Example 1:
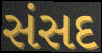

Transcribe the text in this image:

સંસદ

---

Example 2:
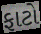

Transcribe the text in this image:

ફાટો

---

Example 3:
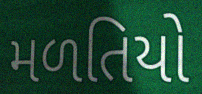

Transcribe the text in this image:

મળતિયો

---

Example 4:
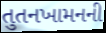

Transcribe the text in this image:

તુતનખામનની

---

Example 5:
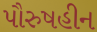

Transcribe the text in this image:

પૌરુષહીન